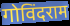
गोविंदराम